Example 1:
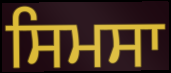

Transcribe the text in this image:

ਸਿਮਸਾ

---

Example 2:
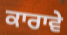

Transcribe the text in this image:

ਕਾਰਾਵੇ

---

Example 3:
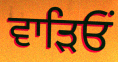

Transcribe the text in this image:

ਵਾੜਿਓਂ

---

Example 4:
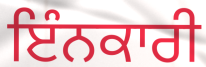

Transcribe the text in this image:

ਇੰਨਕਾਰੀ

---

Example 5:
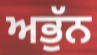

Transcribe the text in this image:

ਅਭੁੱਨ